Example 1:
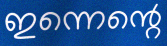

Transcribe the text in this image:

ഇന്നെന്റെ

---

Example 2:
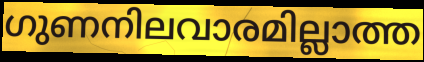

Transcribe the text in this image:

ഗുണനിലവാരമില്ലാത്ത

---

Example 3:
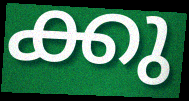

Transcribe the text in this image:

ക്കു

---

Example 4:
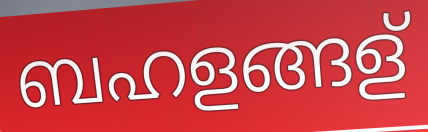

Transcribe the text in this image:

ബഹളങ്ങള്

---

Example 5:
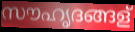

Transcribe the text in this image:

സൗഹൃദങ്ങള്